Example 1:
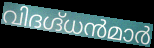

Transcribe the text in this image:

വിദഗ്ദ്ധൻമാർ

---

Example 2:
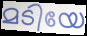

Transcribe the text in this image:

മടിയേ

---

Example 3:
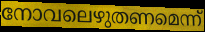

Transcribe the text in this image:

നോവലെഴുതണമെന്ന്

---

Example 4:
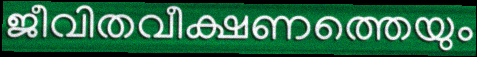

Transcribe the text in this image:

ജീവിതവീക്ഷണത്തെയും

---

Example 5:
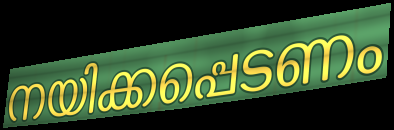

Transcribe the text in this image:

നയിക്കപ്പെടണം